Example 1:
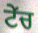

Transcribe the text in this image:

ਟੇਂਚ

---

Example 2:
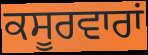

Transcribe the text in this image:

ਕਸੂਰਵਾਰਾਂ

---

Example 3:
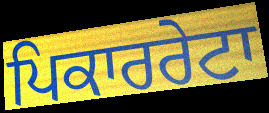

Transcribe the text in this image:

ਪਿਕਾਰਰੇਟਾ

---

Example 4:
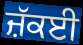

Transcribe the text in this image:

ਜ਼ੱਕਈ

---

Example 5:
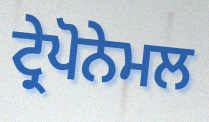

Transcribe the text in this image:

ਟ੍ਰੇਪੋਨੇਮਲ